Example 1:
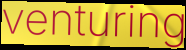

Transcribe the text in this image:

venturing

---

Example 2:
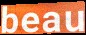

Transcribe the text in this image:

beau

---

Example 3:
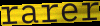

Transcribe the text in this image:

rarer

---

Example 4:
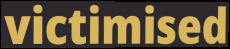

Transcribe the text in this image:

victimised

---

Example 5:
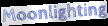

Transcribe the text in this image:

Moonlighting